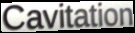
Cavitation